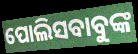
ପୋଲିସବାବୁଙ୍କ